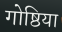
गोष्ठिया